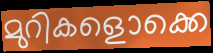
മുറികളൊക്കെ